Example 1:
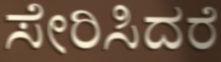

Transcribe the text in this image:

ಸೇರಿಸಿದರೆ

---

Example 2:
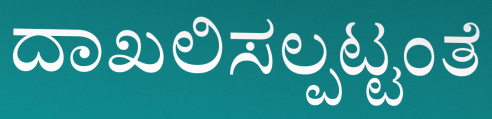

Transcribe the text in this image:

ದಾಖಲಿಸಲ್ಪಟ್ಟಂತೆ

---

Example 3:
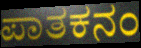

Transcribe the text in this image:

ಪಾತಕನಂ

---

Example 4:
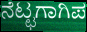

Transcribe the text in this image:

ನೆಟ್ಟಗಾಗಿಪ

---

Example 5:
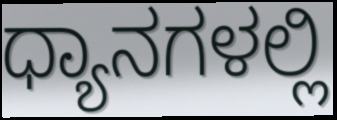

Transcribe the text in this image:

ಧ್ಯಾನಗಳಲ್ಲಿ